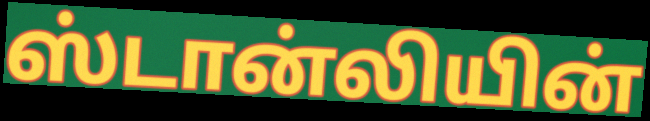
ஸ்டான்லியின்